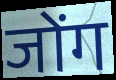
जोंग